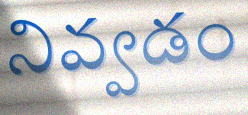
నివ్వడం